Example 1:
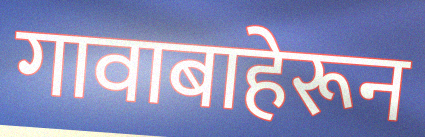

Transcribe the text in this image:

गावाबाहेरून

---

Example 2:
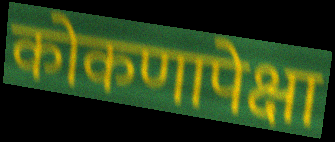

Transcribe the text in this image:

कोकणापेक्षा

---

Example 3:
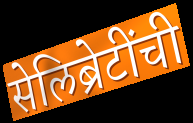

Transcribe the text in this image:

सेलिब्रेटींची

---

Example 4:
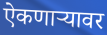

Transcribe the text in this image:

ऐकणाऱ्यावर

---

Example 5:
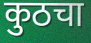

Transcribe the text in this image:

कुठचा